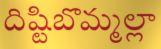
దిష్టిబొమ్మల్లా